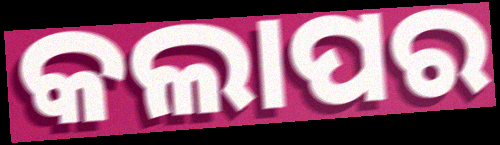
କଲାପର